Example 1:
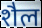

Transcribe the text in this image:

शैल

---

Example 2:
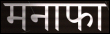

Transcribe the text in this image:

मनाफा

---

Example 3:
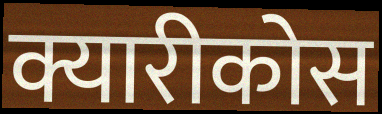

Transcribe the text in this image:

क्यारीकोस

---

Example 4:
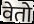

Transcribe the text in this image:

वेतो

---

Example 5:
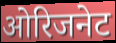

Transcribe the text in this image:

ओरिजनेट